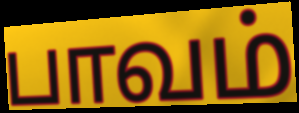
பாவம்